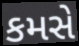
કમસે